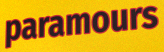
paramours